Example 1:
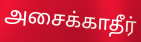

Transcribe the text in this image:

அசைக்காதீர்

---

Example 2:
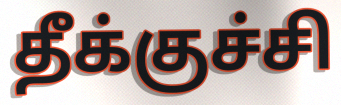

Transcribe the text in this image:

தீக்குச்சி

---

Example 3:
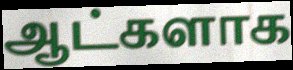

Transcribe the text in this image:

ஆட்களாக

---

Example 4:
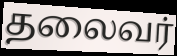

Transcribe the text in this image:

தலைவர்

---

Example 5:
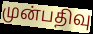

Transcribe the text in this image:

முன்பதிவு